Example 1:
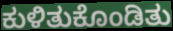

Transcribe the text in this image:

ಕುಳಿತುಕೊಂಡಿತು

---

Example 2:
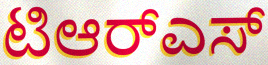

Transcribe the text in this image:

ಟಿಆರ್‌ಎಸ್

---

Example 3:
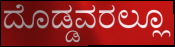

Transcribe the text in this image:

ದೊಡ್ಡವರಲ್ಲೂ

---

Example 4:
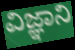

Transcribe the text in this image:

ವಿಜ್ಞಾನಿ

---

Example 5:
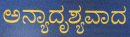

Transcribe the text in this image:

ಅನ್ಯಾದೃಶ್ಯವಾದ